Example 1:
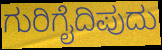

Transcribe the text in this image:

ಗುರಿಗೈದಿಪುದು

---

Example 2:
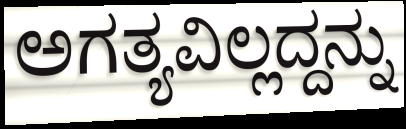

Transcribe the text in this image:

ಅಗತ್ಯವಿಲ್ಲದ್ದನ್ನು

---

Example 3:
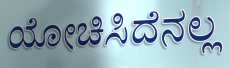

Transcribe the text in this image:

ಯೋಚಿಸಿದೆನಲ್ಲ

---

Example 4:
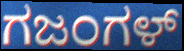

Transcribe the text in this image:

ಗಜಂಗಳ್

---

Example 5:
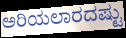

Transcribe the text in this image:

ಅರಿಯಲಾರದಷ್ಟು